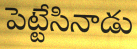
పెట్టేసినాడు